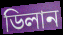
ডিলান